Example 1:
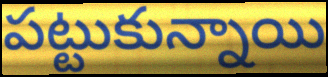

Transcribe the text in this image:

పట్టుకున్నాయి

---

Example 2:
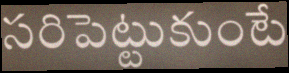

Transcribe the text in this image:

సరిపెట్టుకుంటే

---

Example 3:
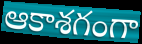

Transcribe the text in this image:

ఆకాశగంగా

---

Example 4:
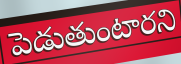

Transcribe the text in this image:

పెడుతుంటారని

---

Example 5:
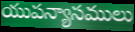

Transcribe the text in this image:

యుపన్యాసములు